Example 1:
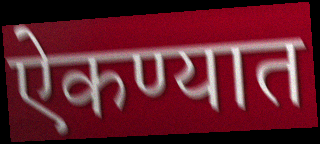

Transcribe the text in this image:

ऐकण्यात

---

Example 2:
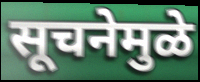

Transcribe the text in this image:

सूचनेमुळे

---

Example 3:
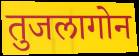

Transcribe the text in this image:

तुजलागोन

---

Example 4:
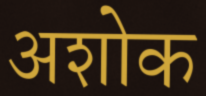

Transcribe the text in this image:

अशोक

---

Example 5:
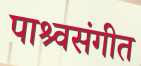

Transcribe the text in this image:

पाश्र्वसंगीत